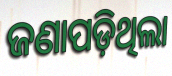
ଜଣାପଡ଼ିଥିଲା